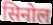
सिनोल